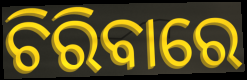
ଚିରିବାରେ